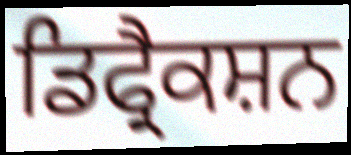
ਡਿਫ੍ਰੈਕਸ਼ਨ